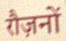
रौज़नों